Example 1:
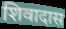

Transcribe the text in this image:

शिवादास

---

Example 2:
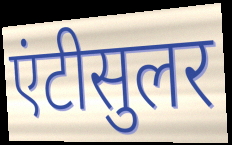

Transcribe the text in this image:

एंटीसुलर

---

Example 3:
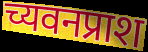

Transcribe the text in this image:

च्‍यवनप्राश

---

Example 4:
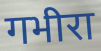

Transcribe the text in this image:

गभीरा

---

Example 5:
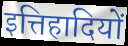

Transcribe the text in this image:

इत्तिहादियों